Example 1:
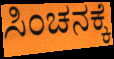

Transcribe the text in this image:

ಸಿಂಚನಕ್ಕೆ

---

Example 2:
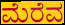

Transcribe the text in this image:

ಮೆರೆವ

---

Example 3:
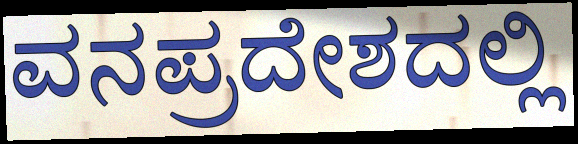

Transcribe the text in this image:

ವನಪ್ರದೇಶದಲ್ಲಿ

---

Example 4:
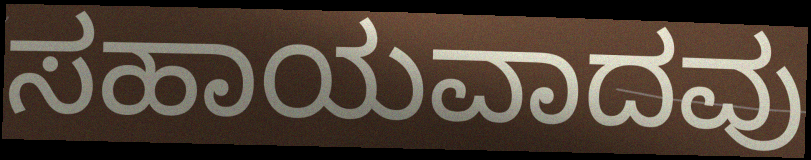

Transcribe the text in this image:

ಸಹಾಯವಾದವು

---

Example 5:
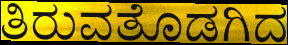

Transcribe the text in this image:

ತಿರುವತೊಡಗಿದ